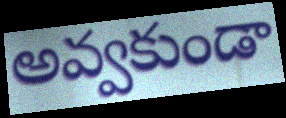
అవ్వకుండా